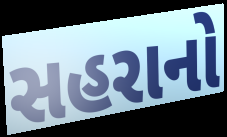
સહરાનો